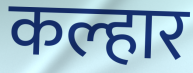
कल्हार